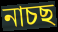
নাচছ